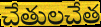
చేతులచేత